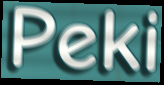
Peki